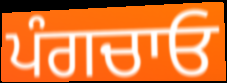
ਪੰਗਚਾਓ